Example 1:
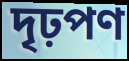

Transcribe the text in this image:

দৃঢ়পণ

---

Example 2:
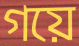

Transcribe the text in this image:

গয়ে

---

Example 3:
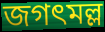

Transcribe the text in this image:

জগৎমল্ল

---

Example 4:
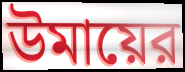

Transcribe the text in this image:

উমায়ের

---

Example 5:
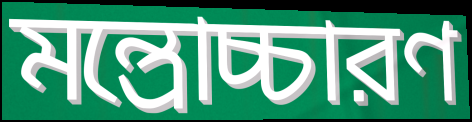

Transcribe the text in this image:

মন্ত্রোচ্চারণ